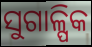
ସୁଗାଳ୍ପିକ